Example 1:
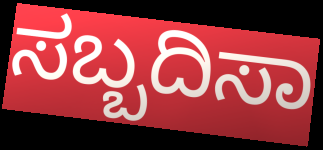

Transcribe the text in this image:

ಸಬ್ಬದಿಸಾ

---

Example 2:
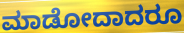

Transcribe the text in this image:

ಮಾಡೋದಾದರೂ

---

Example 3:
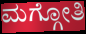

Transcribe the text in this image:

ಮಗ್ಗೋತಿ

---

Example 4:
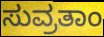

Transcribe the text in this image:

ಸುವ್ರತಾಂ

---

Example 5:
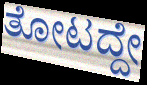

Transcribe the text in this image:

ತೋಟದ್ದೇ